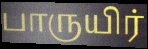
பாருயிர்